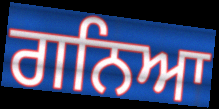
ਗਨਿਆ